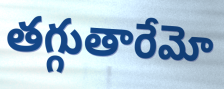
తగ్గుతారేమో